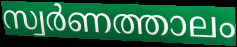
സ്വർണത്താലം